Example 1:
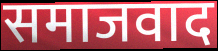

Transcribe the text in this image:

समाजवाद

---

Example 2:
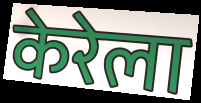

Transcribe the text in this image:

केरेला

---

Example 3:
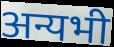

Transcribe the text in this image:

अन्यभी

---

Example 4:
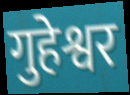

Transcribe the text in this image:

गुहेश्वर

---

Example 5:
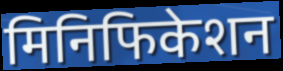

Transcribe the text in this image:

मिनिफिकेशन